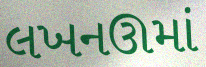
લખનઊમાં